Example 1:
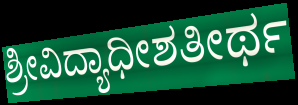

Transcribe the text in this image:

ಶ್ರೀವಿದ್ಯಾಧೀಶತೀರ್ಥ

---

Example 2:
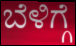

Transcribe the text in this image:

ಬೆಳಿಗ್ಗೆ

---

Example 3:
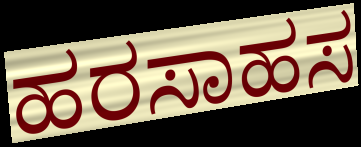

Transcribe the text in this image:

ಹರಸಾಹಸ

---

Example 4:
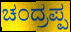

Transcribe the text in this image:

ಚಂದ್ರಪ್ಪ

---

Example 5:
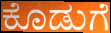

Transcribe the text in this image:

ಕೊಡುಗೆ